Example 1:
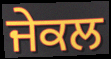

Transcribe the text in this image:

ਜੇਕਲ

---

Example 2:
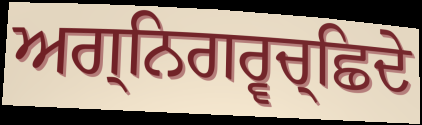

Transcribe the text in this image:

ਅਗ੍ਨਿਗਰ੍ਵਚ੍ਛਿਦੇ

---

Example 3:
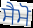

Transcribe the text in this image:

ਸੈਮੋ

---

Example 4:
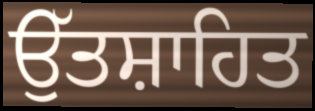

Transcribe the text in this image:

ਉੱਤਸ਼ਾਹਿਤ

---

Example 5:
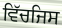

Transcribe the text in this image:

ਵਿੱਚਜਿਸ